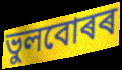
ভুলবোৰৰ